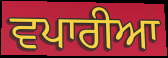
ਵਪਾਰੀਆ